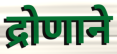
द्रोणाने